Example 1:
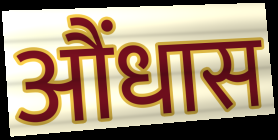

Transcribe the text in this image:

औंधास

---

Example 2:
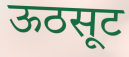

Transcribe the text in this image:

ऊठसूट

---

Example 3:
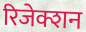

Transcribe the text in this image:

रिजेक्शन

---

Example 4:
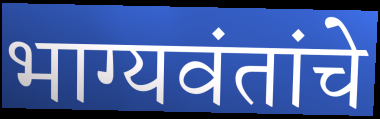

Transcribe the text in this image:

भाग्यवंतांचे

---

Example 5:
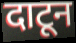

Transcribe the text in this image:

दाटून